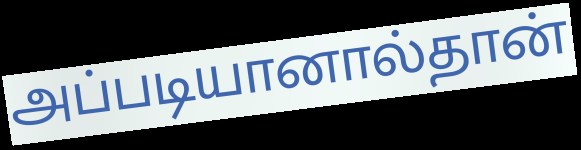
அப்படியானால்தான்